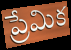
ప్రేమిక